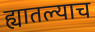
ह्यातल्याच